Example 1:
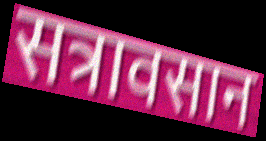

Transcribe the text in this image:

सत्रावसान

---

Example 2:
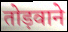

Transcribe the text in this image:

तोड़वाने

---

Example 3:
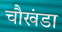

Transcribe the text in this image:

चौखंडा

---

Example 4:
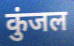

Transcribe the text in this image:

कुंजल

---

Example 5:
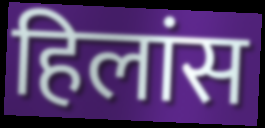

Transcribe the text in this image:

हिलांस